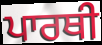
ਪਾਰਥੀ